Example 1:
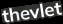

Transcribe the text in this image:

thevlet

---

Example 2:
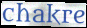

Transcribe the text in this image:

chakre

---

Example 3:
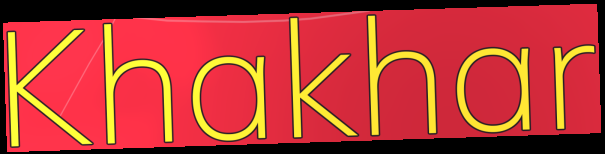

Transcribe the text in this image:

Khakhar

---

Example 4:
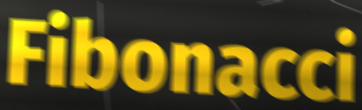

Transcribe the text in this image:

Fibonacci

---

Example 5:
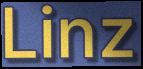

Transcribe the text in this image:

Linz